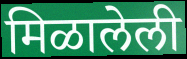
मिळालेली